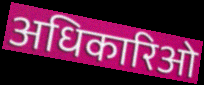
अधिकारिओ